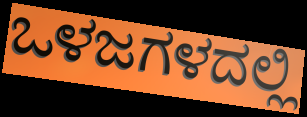
ಒಳಜಗಳದಲ್ಲಿ